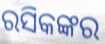
ରସିକଙ୍କର